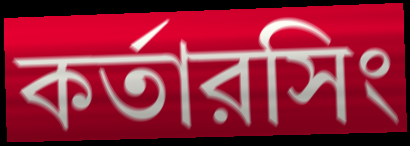
কর্তারসিং